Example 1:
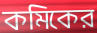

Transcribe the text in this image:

কমিকের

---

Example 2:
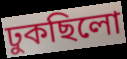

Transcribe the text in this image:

ঢুকছিলো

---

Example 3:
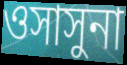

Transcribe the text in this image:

ওসাসুনা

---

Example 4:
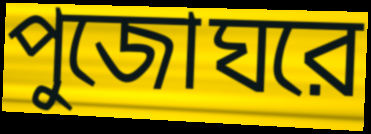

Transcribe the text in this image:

পুজোঘরে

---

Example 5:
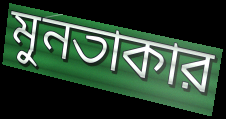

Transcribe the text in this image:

মুনতাকার